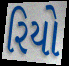
રિયો